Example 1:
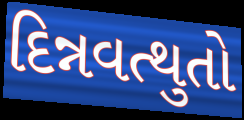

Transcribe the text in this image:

દિન્નવત્થુતો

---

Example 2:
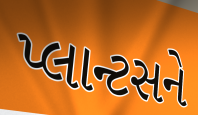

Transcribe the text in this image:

પ્લાન્ટસને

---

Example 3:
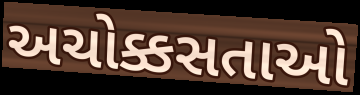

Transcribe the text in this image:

અચોક્કસતાઓ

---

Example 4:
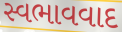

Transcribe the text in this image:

સ્વભાવવાદ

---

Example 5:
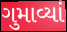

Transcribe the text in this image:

ગુમાવ્યાં